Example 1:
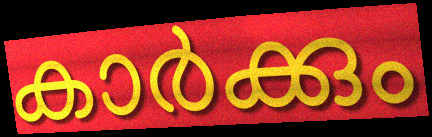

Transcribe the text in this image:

കാർക്കും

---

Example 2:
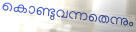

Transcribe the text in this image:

കൊണ്ടുവന്നതെന്നും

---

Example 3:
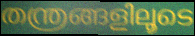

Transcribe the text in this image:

തന്ത്രങ്ങളിലൂടെ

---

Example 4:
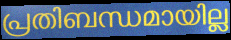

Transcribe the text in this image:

പ്രതിബന്ധമായില്ല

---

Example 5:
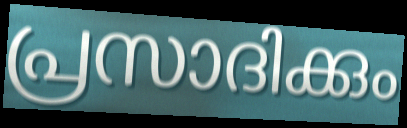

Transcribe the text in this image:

പ്രസാദിക്കും